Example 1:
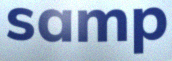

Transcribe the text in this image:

samp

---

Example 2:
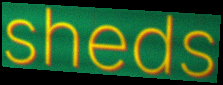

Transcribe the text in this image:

sheds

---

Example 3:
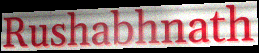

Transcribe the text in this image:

Rushabhnath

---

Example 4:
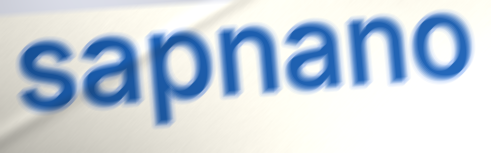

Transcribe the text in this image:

sapnano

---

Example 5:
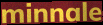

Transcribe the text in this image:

minnale